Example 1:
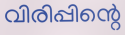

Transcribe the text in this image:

വിരിപ്പിന്റെ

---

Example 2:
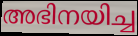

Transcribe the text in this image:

അഭിനയിച്ച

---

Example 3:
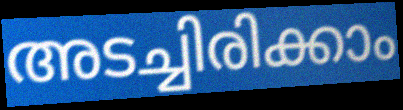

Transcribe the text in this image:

അടച്ചിരിക്കാം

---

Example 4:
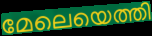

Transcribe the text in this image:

മേലെയെത്തി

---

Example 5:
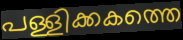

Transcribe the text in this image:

പള്ളിക്കകത്തെ